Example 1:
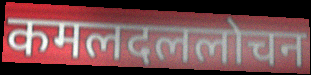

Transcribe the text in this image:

कमलदललोचन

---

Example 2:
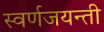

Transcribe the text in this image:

स्वर्णजयन्ती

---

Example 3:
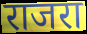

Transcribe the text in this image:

राजरा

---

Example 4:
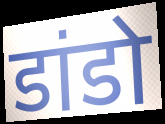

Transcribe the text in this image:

डांडो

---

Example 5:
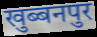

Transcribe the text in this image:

खुब्बनपुर